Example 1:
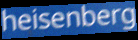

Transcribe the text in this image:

heisenberg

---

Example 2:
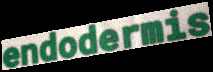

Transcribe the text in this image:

endodermis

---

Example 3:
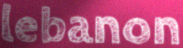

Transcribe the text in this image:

lebanon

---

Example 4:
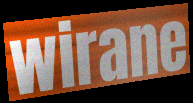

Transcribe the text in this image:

wirane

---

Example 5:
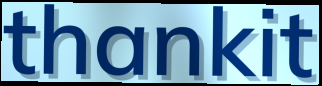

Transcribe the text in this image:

thankit